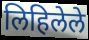
लिहिलेले